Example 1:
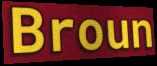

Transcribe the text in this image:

Broun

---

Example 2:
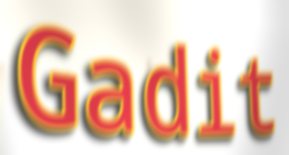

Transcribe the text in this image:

Gadit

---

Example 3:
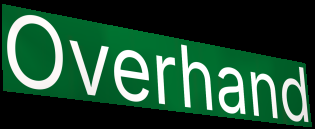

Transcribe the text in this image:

Overhand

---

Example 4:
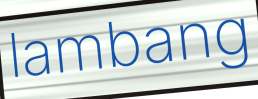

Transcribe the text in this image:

lambang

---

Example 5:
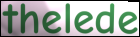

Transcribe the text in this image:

thelede